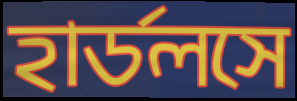
হার্ডলসে